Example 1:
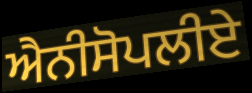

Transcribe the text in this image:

ਐਨੀਸੋਪਲੀਏ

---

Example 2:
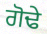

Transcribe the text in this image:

ਗੋਢੇ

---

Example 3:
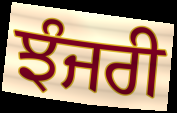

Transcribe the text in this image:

ਝੰਜਰੀ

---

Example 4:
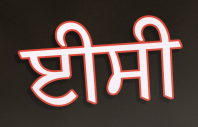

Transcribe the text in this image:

ਈਸੀ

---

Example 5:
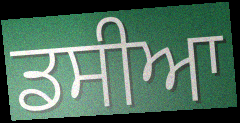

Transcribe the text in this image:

ਡਸੀਆ